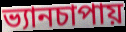
ভ্যানচাপায়